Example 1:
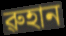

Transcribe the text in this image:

ৱুহান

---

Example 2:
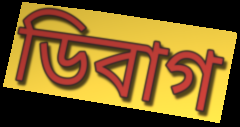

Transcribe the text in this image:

ডিবাগ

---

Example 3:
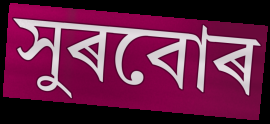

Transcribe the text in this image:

সুৰবোৰ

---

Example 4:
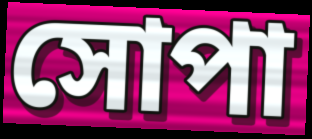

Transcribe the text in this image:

সোপা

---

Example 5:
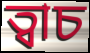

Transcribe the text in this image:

ত্বাচ